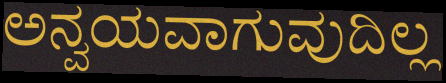
ಅನ್ವಯವಾಗುವುದಿಲ್ಲ